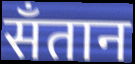
सँतान